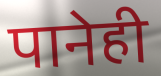
पानेही